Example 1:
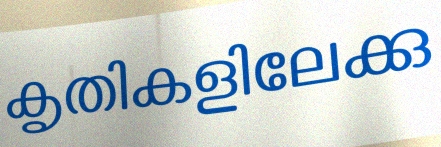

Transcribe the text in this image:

കൃതികളിലേക്കു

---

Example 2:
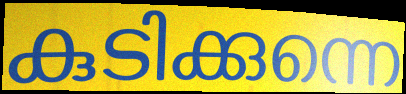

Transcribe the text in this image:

കുടിക്കുന്നെ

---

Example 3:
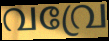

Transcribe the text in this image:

വവ്രേ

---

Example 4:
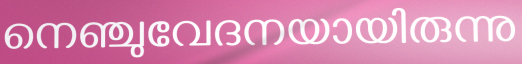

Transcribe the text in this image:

നെഞ്ചുവേദനയായിരുന്നു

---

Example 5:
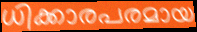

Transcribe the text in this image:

ധിക്കാരപരമായ